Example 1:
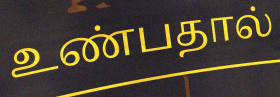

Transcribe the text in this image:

உண்பதால்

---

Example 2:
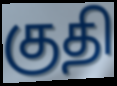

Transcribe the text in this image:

குதி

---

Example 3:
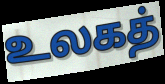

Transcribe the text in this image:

உலகத்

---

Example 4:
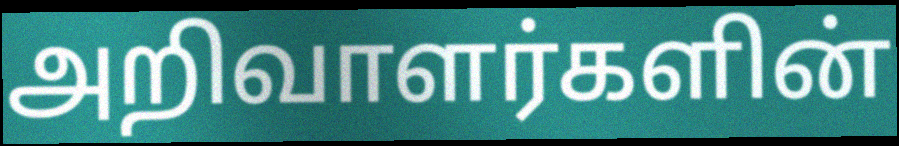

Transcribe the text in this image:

அறிவாளர்களின்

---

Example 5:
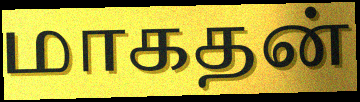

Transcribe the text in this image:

மாகதன்